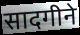
सादगीने